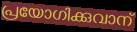
പ്രയോഗിക്കുവാന്